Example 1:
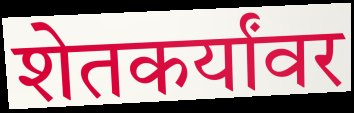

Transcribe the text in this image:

शेतकर्यांवर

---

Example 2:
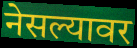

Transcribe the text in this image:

नेसल्यावर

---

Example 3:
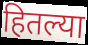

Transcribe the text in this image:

हितल्या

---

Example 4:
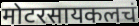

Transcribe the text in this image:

मोटरसायकलचं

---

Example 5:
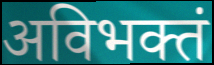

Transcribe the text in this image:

अविभक्तं